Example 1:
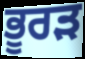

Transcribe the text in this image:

ਭੂਰੜ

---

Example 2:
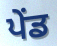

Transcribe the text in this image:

ਪੇਂਡ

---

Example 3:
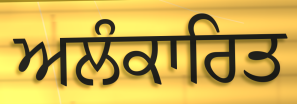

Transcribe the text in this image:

ਅਲੰਕਾਰਿਤ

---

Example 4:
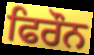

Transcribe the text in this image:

ਫਿਰੌਨ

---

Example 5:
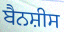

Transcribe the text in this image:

ਬੈਨਸ਼ੀਸ